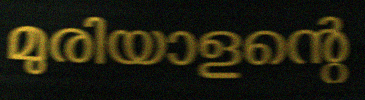
മുരിയാളന്റെ